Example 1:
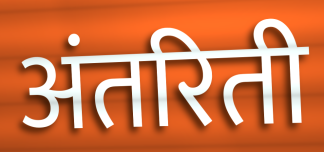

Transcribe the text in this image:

अंतरिती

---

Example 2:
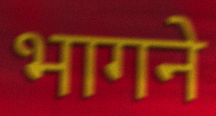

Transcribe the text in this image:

भागने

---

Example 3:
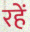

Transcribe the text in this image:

रहें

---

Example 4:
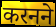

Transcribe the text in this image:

करनने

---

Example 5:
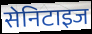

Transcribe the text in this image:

सेनिटाइज